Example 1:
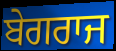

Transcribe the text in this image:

ਬੇਗਰਾਜ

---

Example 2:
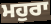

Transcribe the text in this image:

ਮਹੁਰਾ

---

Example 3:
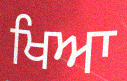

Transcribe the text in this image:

ਖਿਆ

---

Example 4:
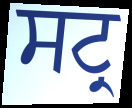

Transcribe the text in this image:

ਸਟ੍ਰ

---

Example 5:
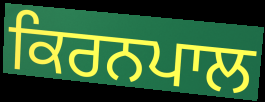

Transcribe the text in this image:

ਕਿਰਨਪਾਲ